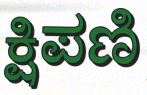
ಕ್ಷಿಪಣಿ